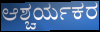
ಆಶ್ಚರ್ಯಕರ